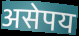
असेपय